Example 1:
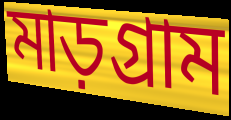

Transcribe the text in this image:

মাড়গ্রাম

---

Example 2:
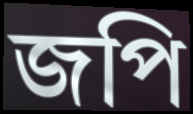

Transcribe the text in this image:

জপি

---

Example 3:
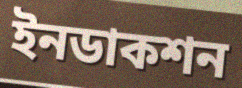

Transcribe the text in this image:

ইনডাকশন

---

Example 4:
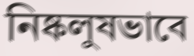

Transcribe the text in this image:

নিষ্কলুষভাবে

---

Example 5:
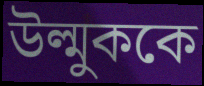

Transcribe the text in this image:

উল্মুককে